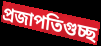
প্রজাপতিগুচ্ছ